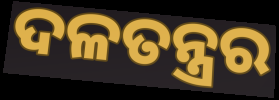
ଦଳତନ୍ତ୍ରର